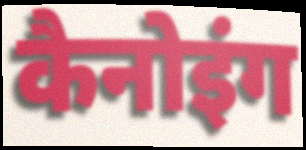
कैनोइंग